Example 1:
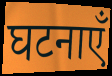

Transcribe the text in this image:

घटनाएँ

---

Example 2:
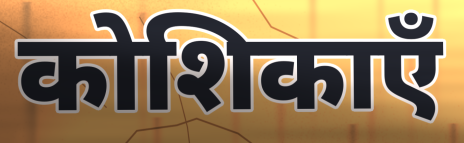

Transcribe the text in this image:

कोशिकाएँ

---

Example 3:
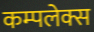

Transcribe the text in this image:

कम्पलेक्स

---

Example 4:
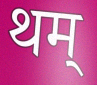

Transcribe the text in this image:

थम्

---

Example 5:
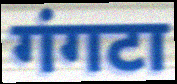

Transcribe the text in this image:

गंगटा